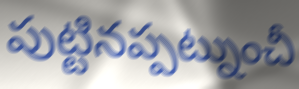
పుట్టినప్పట్నుంచీ